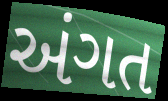
અંગત